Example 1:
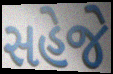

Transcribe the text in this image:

સહેજે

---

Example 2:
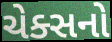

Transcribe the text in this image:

ચેક્સનો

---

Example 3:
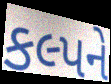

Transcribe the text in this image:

કલ્પને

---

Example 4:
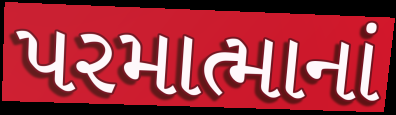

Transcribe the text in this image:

પરમાત્માનાં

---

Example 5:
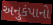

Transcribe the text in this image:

અનુકંપાનો